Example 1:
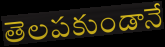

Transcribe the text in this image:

తెలపకుండానే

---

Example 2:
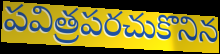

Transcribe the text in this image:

పవిత్రపరచుకొనిన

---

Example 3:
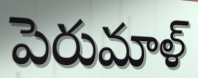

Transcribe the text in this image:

పెరుమాళ్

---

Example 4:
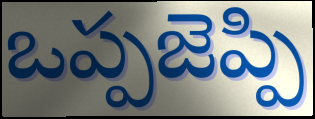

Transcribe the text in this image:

ఒప్పజెప్పి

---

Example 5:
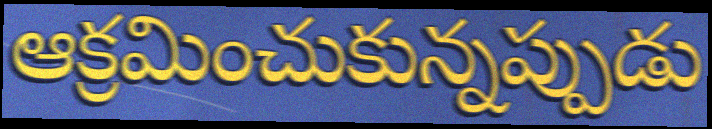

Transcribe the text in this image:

ఆక్రమించుకున్నప్పుడు